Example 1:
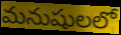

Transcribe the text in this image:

మనుషులలో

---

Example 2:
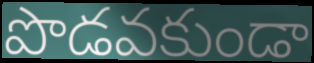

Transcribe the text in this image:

పొడవకుండా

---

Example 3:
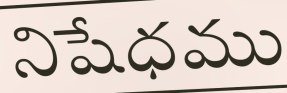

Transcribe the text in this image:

నిషేధము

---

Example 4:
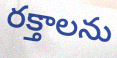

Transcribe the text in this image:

రక్తాలను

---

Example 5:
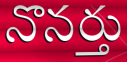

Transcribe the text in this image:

నొనర్తు